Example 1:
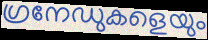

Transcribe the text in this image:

ഗ്രനേഡുകളെയും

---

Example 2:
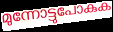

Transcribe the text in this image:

മുന്നോട്ടുപോകുക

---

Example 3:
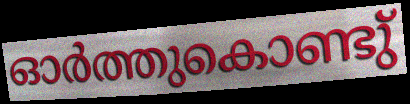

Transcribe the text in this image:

ഓർത്തുകൊണ്ടു്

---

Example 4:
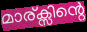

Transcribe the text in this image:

മാര്ക്സിന്റെ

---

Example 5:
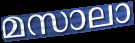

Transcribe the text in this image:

മസാലാ